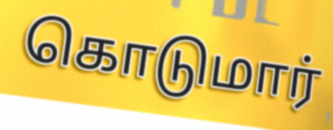
கொடுமார்